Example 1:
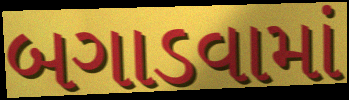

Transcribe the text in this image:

બગાડવામાં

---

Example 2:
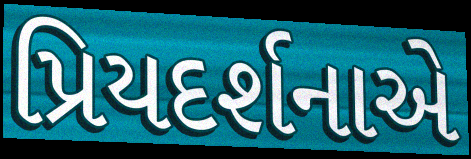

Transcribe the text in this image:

પ્રિયદર્શનાએ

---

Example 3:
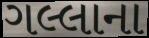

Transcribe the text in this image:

ગલ્લાના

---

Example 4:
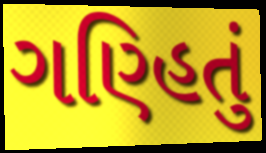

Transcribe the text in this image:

ગણ્હિતું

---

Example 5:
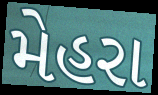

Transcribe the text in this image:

મેહરા